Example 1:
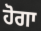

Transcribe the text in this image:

ਹੋਗਾ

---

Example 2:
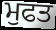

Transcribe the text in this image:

ਮੁਫਤ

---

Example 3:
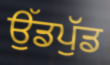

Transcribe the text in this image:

ਉੱਡਪੁੱਡ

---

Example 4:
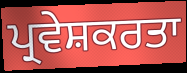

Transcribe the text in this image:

ਪ੍ਰਵੇਸ਼ਕਰਤਾ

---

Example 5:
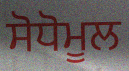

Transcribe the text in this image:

ਸੋਧੋਮੂਲ